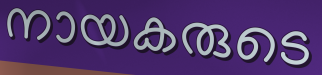
നായകരുടെ